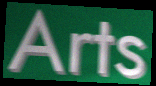
Arts